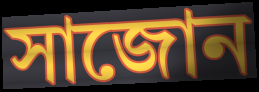
সাজোন